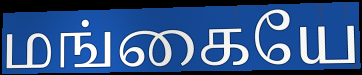
மங்கையே